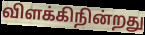
விளக்கிநின்றது